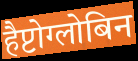
हैप्टोग्लोबिन